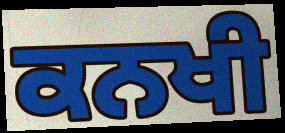
ਕਨਖੀ